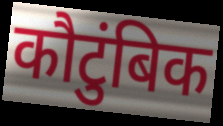
कौटुंबिक